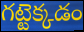
గట్టెక్కడం